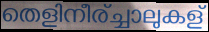
തെളിനീര്ച്ചാലുകള്